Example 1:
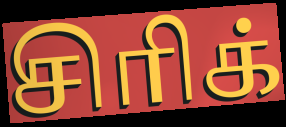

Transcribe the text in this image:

சிரிக்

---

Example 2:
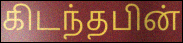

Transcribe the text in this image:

கிடந்தபின்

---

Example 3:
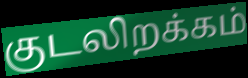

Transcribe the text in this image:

குடலிறக்கம்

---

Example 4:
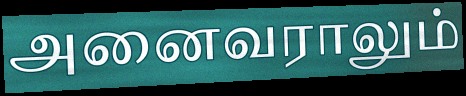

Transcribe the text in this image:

அனைவராலும்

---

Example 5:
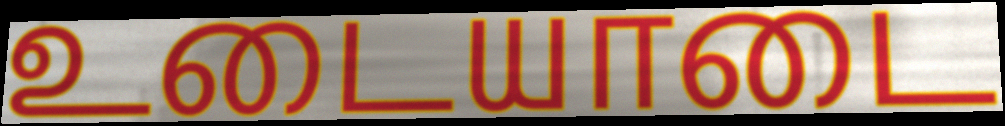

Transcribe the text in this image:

உடையாடை